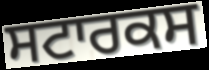
ਸਟਾਰਕਸ